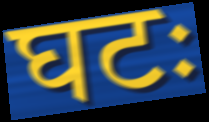
घटः